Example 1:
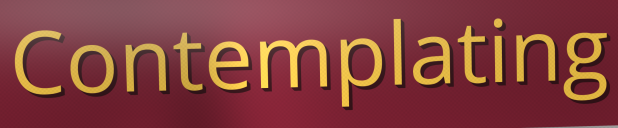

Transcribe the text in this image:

Contemplating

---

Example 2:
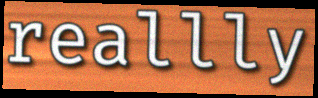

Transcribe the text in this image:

reallly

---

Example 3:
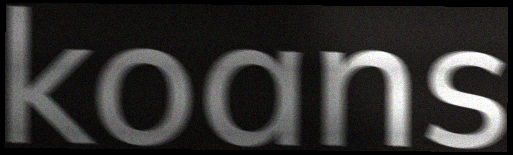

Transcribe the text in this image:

koans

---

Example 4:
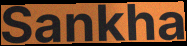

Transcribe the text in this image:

Sankha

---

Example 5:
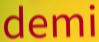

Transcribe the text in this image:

demi